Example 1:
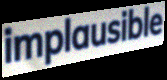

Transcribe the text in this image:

implausible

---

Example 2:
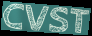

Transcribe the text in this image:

CVST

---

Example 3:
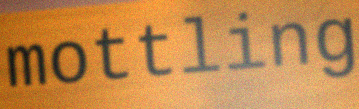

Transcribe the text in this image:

mottling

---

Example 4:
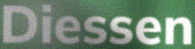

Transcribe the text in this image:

Diessen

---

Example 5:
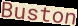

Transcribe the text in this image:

Buston